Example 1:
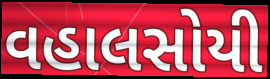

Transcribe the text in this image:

વહાલસોયી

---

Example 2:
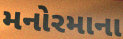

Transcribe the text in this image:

મનોરમાના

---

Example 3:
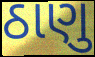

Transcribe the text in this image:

ઠાણુ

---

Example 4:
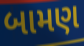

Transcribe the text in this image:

બામણ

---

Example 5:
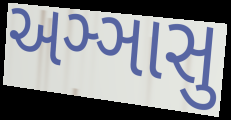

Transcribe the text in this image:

અઞ્ઞાસુ